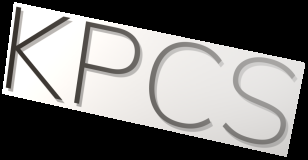
KPCS